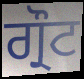
ਗ੍ਰੌਟ